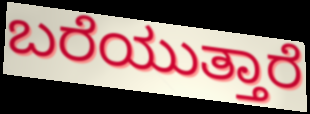
ಬರೆಯುತ್ತಾರೆ